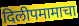
दिलीपमामाचा